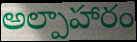
అల్పాహారం